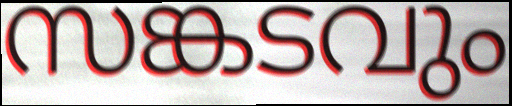
സങ്കടവും